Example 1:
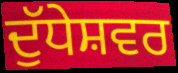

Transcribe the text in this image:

ਦੁੱਧੇਸ਼ਵਰ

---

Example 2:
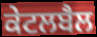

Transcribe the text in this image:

ਕੇਟਲਬੈਲ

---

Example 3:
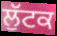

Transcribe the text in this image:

ਲੁੱਟਕ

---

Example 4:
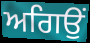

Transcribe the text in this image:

ਅਗਿਉਂ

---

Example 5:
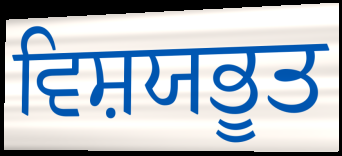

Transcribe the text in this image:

ਵਿਸ਼ਯਭੂਤ